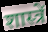
शास्त्रें